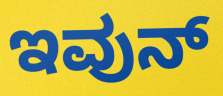
ಇವುನ್